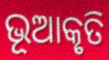
ଭୂଆକୃତି